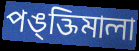
পঙ্‌ক্তিমালা